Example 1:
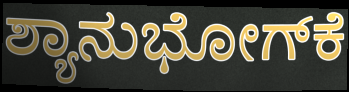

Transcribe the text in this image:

ಶ್ಯಾನುಭೋಗ್‌ಕೆ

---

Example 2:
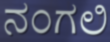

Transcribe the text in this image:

ನಂಗಲಿ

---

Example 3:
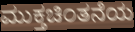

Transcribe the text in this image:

ಮುಕ್ತಚಿಂತನೆಯ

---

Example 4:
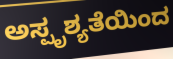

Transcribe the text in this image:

ಅಸ್ಪೃಶ್ಯತೆಯಿಂದ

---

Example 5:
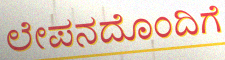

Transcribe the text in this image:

ಲೇಪನದೊಂದಿಗೆ